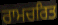
ਰਾਮਚਰਿਤ